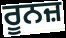
ਰੂਨਜ਼